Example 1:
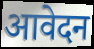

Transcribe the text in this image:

आवेदन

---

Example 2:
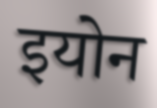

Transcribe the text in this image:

इयोन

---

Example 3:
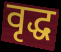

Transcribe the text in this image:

वृद्ध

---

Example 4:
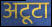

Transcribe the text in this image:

अटूटा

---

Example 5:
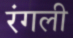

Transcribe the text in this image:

रंगली